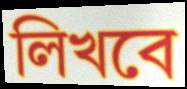
লিখবে